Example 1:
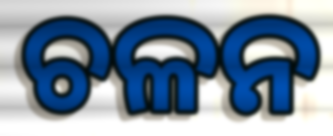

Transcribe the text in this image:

ଚଳନ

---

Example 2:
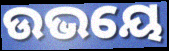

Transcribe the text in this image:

ଉଭୟେ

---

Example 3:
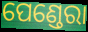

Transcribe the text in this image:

ପେଣ୍ଡେରା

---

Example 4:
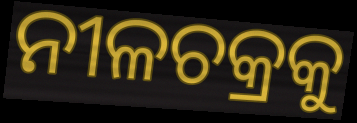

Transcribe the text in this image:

ନୀଳଚକ୍ରକୁ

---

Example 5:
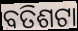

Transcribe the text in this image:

ବତିଶଟା